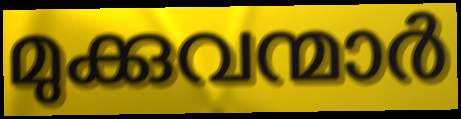
മുക്കുവന്മാർ